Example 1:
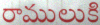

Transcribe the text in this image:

రాములుకి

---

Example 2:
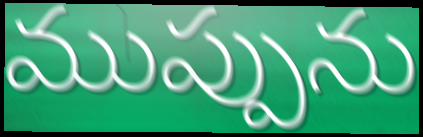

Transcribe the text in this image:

ముప్పును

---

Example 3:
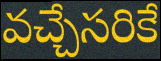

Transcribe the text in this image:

వచ్చేసరికే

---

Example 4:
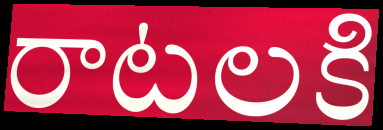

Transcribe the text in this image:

రాటలకి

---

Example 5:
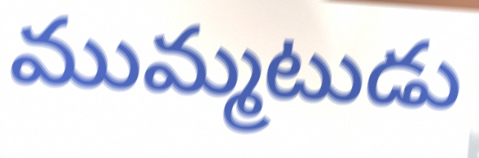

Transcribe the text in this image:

ముమ్మటుడు